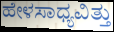
ಹೇಳಸಾಧ್ಯವಿತ್ತು